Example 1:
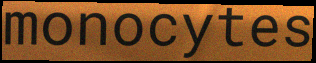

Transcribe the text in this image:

monocytes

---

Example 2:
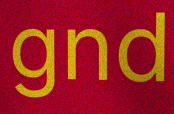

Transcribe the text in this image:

gnd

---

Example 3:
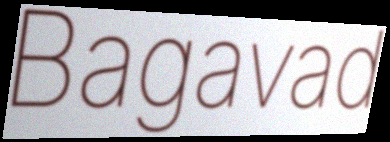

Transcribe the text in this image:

Bagavad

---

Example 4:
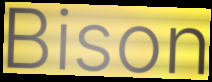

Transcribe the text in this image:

Bison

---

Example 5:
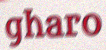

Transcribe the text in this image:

gharo